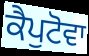
ਕੈਪੁਟੋਵਾ